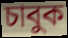
চাবুক